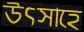
উত্‍সাহে